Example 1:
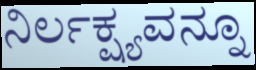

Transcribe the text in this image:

ನಿರ್ಲಕ್ಷ್ಯವನ್ನೂ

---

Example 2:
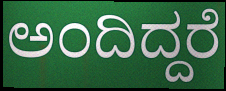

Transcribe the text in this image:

ಅಂದಿದ್ದರೆ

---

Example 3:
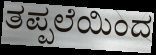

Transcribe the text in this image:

ತಪ್ಪಲೆಯಿಂದ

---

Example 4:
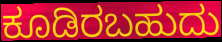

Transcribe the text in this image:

ಕೂಡಿರಬಹುದು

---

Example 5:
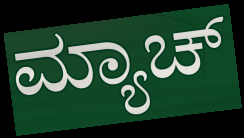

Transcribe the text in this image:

ಮ್ಯಾಚ್